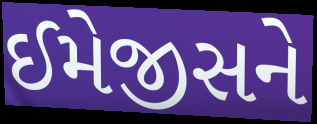
ઈમેજીસને